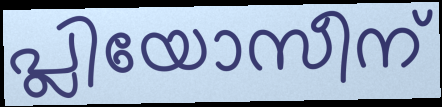
പ്ലിയോസീന്